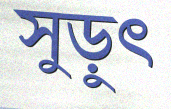
সুড়ুৎ